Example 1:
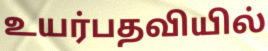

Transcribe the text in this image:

உயர்பதவியில்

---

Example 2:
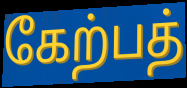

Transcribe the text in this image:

கேற்பத்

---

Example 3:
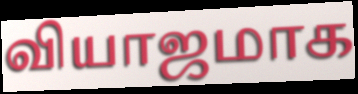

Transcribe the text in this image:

வியாஜமாக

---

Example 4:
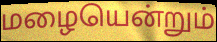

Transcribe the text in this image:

மழையென்றும்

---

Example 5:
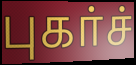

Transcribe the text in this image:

புகர்ச்